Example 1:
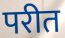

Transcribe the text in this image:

परीत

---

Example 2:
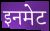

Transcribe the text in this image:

इनमेट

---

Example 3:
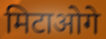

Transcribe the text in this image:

मिटाओगे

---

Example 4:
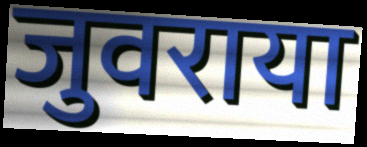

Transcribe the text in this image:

जुवराया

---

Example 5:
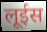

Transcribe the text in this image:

लूईस